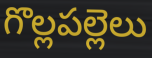
గొల్లపల్లెలు